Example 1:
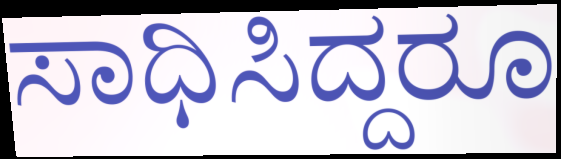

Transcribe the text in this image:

ಸಾಧಿಸಿದ್ದರೂ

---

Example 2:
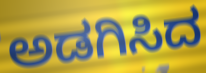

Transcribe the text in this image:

ಅಡಗಿಸಿದ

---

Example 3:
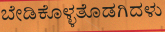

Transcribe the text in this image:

ಬೇಡಿಕೊಳ್ಳತೊಡಗಿದಳು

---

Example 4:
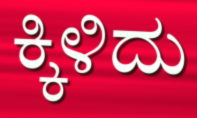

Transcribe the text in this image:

ಕ್ಕಿಳಿದು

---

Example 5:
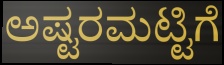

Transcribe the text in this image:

ಅಷ್ಟರಮಟ್ಟಿಗೆ